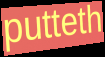
putteth